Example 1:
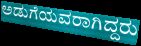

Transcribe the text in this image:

ಅಡುಗೆಯವರಾಗಿದ್ದರು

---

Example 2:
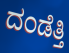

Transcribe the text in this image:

ದಂಡೆತ್ತಿ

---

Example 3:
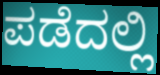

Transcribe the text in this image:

ಪಡೆದಲ್ಲಿ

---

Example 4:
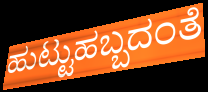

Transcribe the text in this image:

ಹುಟ್ಟುಹಬ್ಬದಂತೆ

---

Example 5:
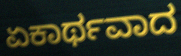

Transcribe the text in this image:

ಏಕಾರ್ಥವಾದ